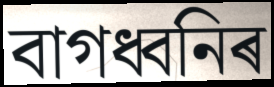
বাগধ্বনিৰ